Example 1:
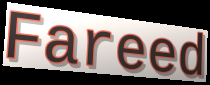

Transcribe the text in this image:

Fareed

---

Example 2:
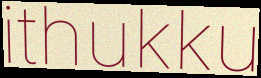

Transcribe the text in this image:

ithukku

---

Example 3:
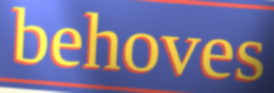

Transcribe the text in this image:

behoves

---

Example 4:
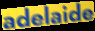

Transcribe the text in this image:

adelaide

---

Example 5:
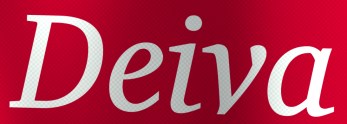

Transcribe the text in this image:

Deiva